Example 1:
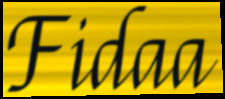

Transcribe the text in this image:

Fidaa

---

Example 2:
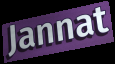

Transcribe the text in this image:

Jannat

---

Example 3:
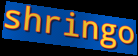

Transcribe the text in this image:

shringo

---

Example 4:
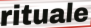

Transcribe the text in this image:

rituale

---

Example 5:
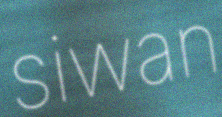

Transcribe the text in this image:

siwan